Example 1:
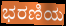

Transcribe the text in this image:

ಭರಣಿಯ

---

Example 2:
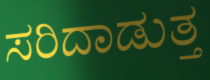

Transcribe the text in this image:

ಸರಿದಾಡುತ್ತ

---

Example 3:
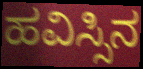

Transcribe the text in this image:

ಹವಿಸ್ಸಿನ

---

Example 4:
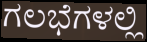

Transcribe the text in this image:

ಗಲಭೆಗಳಲ್ಲಿ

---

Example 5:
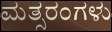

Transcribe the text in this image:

ಮತ್ಸರಂಗಳು